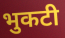
भुकटी